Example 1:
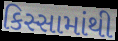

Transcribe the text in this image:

કિસ્સામાંથી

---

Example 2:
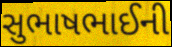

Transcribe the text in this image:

સુભાષભાઈની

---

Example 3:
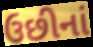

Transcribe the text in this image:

ઉછીનાં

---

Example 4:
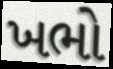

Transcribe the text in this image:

ખભો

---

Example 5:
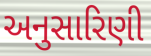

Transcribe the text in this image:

અનુસારિણી